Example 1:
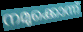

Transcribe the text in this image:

നമുക്കൊന്ന്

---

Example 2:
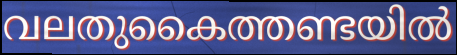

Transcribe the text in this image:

വലതുകൈത്തണ്ടയിൽ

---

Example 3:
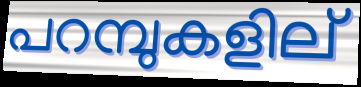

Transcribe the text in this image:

പറമ്പുകളില്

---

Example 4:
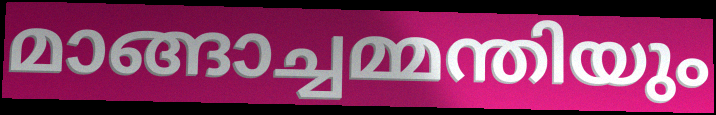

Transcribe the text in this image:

മാങ്ങാച്ചമ്മന്തിയും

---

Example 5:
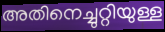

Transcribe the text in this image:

അതിനെച്ചുറ്റിയുള്ള